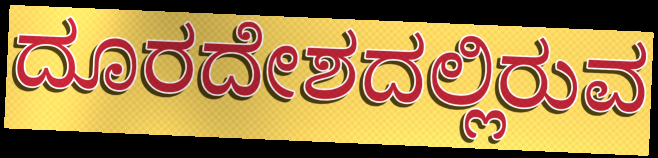
ದೂರದೇಶದಲ್ಲಿರುವ